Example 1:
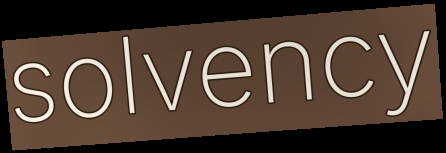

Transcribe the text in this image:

solvency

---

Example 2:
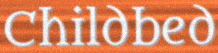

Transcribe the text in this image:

Childbed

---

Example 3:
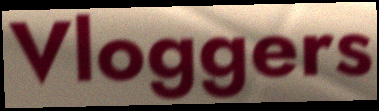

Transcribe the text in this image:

Vloggers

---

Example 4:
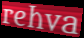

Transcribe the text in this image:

rehva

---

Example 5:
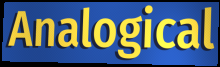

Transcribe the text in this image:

Analogical